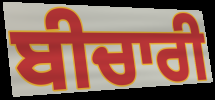
ਬੀਚਾਰੀ